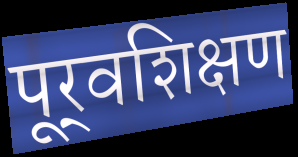
पूर्वशिक्षण